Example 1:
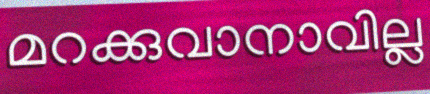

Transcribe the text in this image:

മറക്കുവാനാവില്ല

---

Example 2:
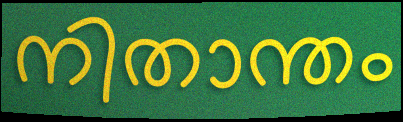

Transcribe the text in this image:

നിതാന്തം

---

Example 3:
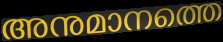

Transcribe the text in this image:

അനുമാനത്തെ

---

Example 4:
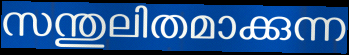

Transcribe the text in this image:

സന്തുലിതമാക്കുന്ന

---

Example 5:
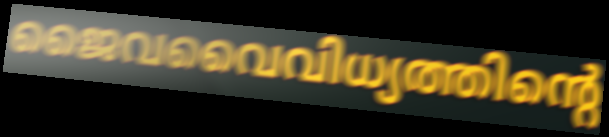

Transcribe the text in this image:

ജൈവവൈവിധ്യത്തിന്റെ